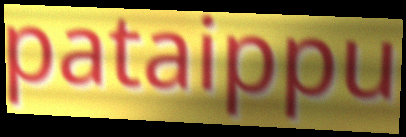
pataippu